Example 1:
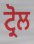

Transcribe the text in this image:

ਟ੍ਰੋਲ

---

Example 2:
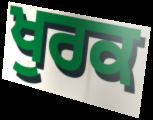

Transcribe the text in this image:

ਖੁਰਕ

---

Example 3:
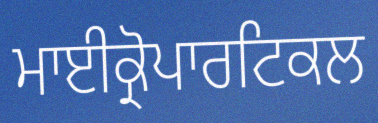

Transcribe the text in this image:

ਮਾਈਕ੍ਰੋਪਾਰਟਿਕਲ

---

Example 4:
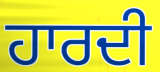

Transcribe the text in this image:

ਹਾਰਦੀ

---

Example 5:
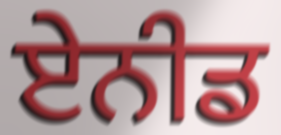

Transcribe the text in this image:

ਏਨੀਡ